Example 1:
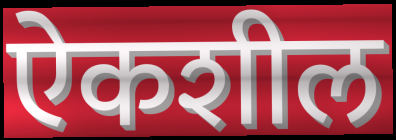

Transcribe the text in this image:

ऐकशील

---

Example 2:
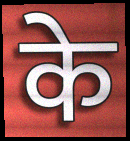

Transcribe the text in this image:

के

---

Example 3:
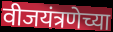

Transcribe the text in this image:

वीजयंत्रणेच्या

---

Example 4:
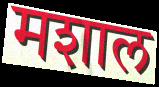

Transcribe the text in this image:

मशाल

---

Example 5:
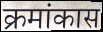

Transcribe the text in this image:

क्रमांकास